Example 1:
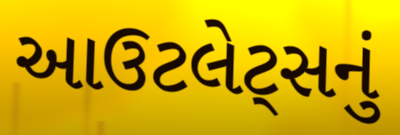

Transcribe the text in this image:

આઉટલેટ્સનું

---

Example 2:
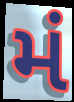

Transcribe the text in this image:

મં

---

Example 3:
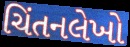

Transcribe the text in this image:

ચિંતનલેખો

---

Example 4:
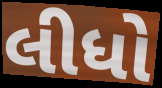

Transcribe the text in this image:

લીધો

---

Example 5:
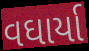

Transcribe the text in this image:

વઘાર્યા